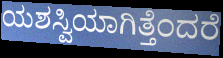
ಯಶಸ್ವಿಯಾಗಿತ್ತೆಂದರೆ